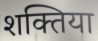
शक्तिया